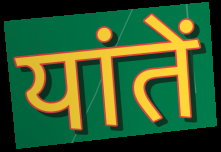
यांतें